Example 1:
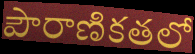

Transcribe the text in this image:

పౌరాణికతలో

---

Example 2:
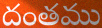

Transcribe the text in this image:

దంతము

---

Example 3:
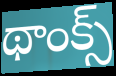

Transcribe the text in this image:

థాంక్స్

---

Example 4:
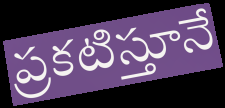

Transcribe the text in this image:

ప్రకటిస్తూనే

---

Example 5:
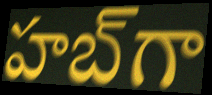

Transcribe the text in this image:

హబ్‌గా